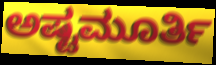
ಅಷ್ಟಮೂರ್ತಿ